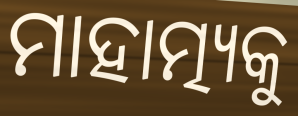
ମାହାତ୍ମ୍ୟକୁ